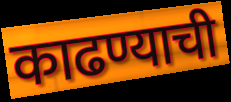
काढण्याची